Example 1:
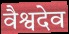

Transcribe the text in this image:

वैश्वदेव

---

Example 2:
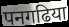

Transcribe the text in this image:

पनगढिया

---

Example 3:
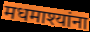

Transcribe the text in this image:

मधमाश्यांना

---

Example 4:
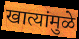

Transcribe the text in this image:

खात्यांमुळे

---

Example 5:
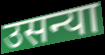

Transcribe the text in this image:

उसन्या